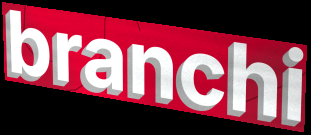
branchi